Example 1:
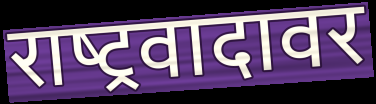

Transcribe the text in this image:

राष्ट्रवादावर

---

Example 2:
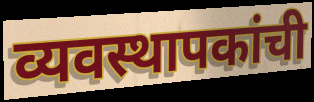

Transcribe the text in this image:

व्यवस्थापकांची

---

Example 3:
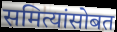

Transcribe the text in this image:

समित्यांसोबत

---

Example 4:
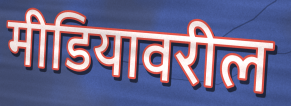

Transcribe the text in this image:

मीडियावरील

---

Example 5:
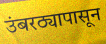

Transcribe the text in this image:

उंबरठ्यापासून